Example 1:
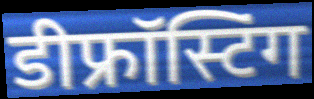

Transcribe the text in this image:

डीफ्रॉस्टिंग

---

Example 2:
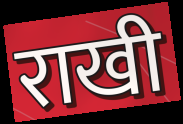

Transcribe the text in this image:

राखी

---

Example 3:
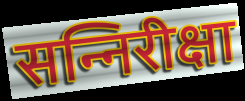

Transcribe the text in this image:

सन्निरीक्षा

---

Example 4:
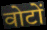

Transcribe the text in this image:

वोटों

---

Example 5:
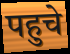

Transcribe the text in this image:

पहुचे